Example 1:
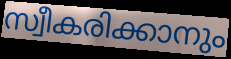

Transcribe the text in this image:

സ്വീകരിക്കാനും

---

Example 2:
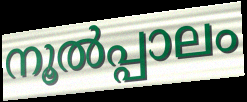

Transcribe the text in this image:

നൂൽപ്പാലം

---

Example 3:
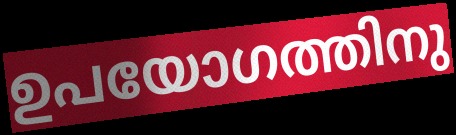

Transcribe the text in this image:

ഉപയോഗത്തിനു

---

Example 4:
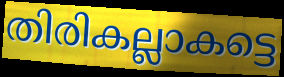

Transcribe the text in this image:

തിരികല്ലാകട്ടെ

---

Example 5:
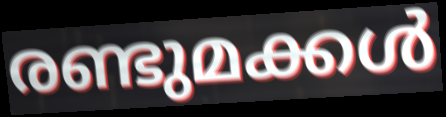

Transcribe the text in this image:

രണ്ടുമക്കൾ